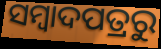
ସମ୍ବାଦପତ୍ରରୁ